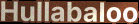
Hullabaloo